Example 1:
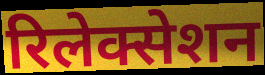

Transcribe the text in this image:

रिलेक्सेशन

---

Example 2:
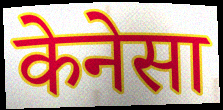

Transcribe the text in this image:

केनेसा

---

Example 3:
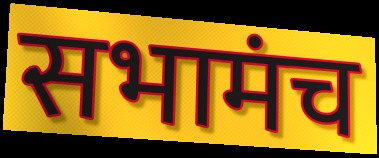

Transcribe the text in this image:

सभामंच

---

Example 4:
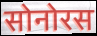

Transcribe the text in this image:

सोनोरस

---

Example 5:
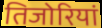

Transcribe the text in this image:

तिजोरियां